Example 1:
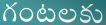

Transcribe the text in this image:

గంటలకు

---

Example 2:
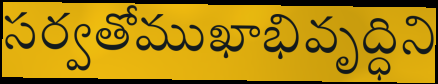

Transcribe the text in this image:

సర్వతోముఖాభివృద్ధిని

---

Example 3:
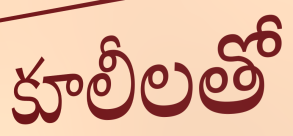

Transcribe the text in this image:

కూలీలతో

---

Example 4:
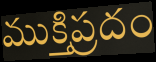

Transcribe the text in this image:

ముక్తిప్రదం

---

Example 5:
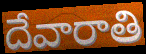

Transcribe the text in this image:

దేవారాతి